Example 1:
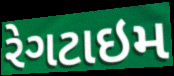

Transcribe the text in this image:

રેગટાઇમ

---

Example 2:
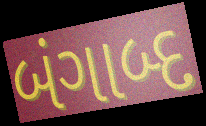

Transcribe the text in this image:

બંગાબ્દ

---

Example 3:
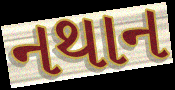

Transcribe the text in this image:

નથાન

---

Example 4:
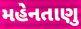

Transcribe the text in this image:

મહેનતાણુ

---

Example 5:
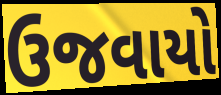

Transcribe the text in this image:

ઉજવાયો